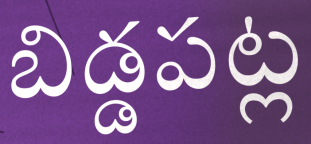
బిడ్డపట్ల